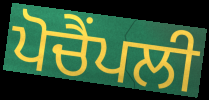
ਪੋਚੈਂਪਲੀ